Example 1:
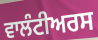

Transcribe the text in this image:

ਵਾਲੰਟੀਅਰਸ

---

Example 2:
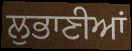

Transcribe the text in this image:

ਲੁਭਾਣੀਆਂ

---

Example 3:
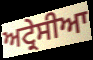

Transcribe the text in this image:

ਅਟ੍ਰੇਸੀਆ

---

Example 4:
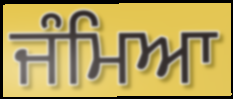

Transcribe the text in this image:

ਜੰਮਿਆ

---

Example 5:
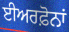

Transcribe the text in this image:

ਈਅਰਫ਼ੋਨਾਂ